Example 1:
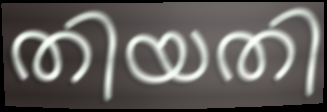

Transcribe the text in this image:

തിയതി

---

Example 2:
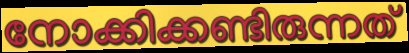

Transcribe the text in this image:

നോക്കിക്കണ്ടിരുന്നത്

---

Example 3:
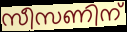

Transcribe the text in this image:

സീസണിന്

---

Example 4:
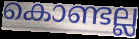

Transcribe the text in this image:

കൊണ്ടല്ല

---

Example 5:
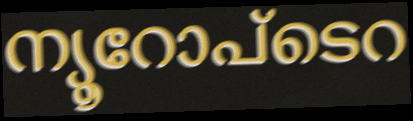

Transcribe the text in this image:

ന്യൂറോപ്ടെറ